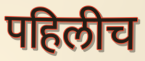
पहिलीच